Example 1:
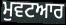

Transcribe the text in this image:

ਮੁਵਟਆਰ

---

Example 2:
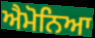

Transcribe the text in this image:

ਐਮੋਨਿਆ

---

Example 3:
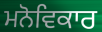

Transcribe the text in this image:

ਮਨੋਵਿਕਾਰ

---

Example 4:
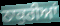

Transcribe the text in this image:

ਠਾਕੁਰੀਆਂ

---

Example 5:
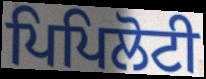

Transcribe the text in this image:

ਪਿਪਿਲੋਟੀ